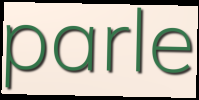
parle